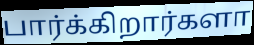
பார்க்கிறார்களா